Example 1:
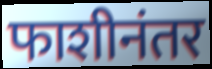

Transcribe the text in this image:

फाशीनंतर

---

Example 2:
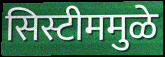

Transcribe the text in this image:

सिस्टीममुळे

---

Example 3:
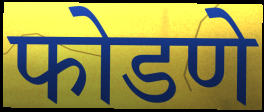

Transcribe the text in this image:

फोडणे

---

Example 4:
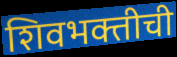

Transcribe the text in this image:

शिवभक्तीची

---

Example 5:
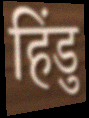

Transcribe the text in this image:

हिंडु